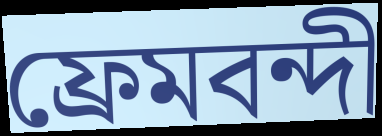
ফ্রেমবন্দী